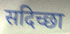
सदिच्छा